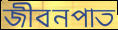
জীবনপাত